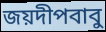
জয়দীপবাবু